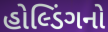
હોલ્ડિંગનો